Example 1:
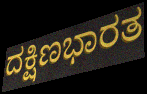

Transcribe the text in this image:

ದಕ್ಷಿಣಭಾರತ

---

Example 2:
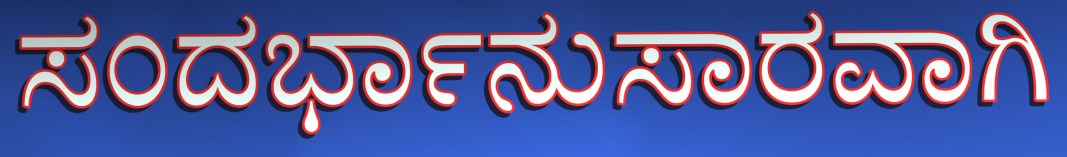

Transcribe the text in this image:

ಸಂದರ್ಭಾನುಸಾರವಾಗಿ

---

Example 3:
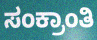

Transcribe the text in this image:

ಸಂಕ್ರಾಂತಿ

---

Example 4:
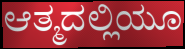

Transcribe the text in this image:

ಆತ್ಮದಲ್ಲಿಯೂ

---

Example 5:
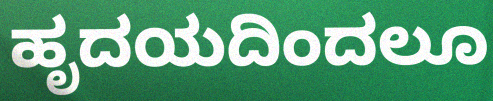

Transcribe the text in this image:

ಹೃದಯದಿಂದಲೂ